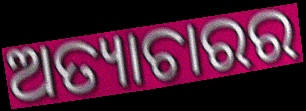
ଅତ୍ୟାଚାରର